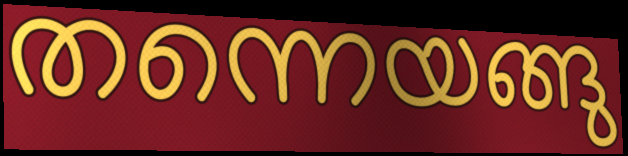
തന്നെയങ്ങു